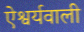
ऐश्वर्यवाली